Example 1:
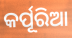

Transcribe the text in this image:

କର୍ପୂରିଆ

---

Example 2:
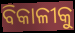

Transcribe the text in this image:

ବିକାଳୀକୁ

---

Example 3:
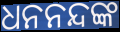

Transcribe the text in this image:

ଧନନନ୍ଦଙ୍କ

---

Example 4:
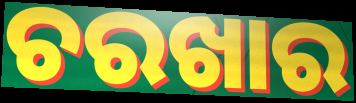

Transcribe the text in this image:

ଚରଖାର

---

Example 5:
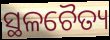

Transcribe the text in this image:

ସ୍ଥଳଚୈତ୍ୟ